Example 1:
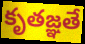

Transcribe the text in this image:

కృతజ్ఞతే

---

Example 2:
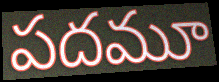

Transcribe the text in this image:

పదమూ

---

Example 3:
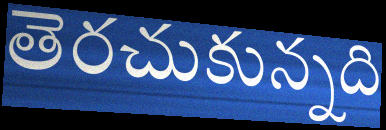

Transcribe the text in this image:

తెరచుకున్నది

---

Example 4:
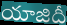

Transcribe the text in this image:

యాజిదీ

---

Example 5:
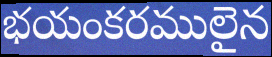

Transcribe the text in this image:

భయంకరములైన